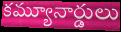
కమ్యూనార్డులు